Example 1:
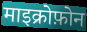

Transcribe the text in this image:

माइक्रोफ़ोन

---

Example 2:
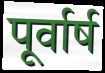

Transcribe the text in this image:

पूर्वार्ष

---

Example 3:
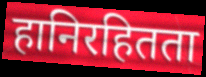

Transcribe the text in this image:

हानिरहितता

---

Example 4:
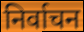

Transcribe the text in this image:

निर्वाचन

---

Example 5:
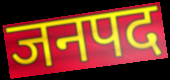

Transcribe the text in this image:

जनपद